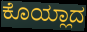
ಕೊಯ್ಲಾದ